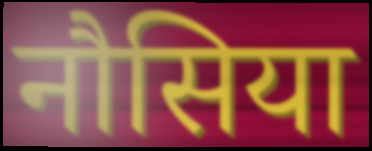
नौसिया